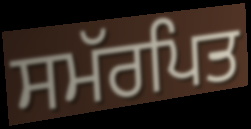
ਸਮੱਰਪਿਤ